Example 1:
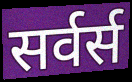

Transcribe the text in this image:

सर्वर्स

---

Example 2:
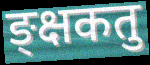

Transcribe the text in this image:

ङ्क्षकतु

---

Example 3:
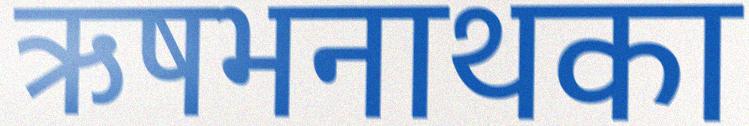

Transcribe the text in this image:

ऋषभनाथका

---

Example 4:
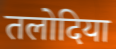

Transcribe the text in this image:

तलोदिया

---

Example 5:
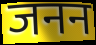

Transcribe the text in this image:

जनन